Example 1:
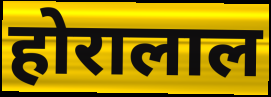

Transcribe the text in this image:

होरालाल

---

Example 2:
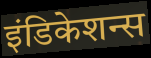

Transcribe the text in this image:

इंडिकेशन्स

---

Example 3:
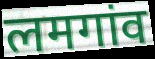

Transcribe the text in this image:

लमगांव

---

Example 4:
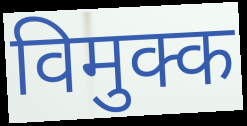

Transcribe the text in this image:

विमुक्क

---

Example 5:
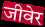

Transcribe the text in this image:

जीवेर